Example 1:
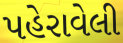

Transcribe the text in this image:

પહેરાવેલી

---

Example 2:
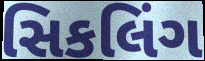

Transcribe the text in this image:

સિકલિંગ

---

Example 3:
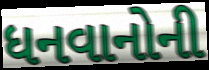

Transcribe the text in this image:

ધનવાનોની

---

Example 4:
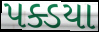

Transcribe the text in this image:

પક્ડયા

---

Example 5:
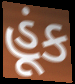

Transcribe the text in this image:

હૂંક